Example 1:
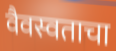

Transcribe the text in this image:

वैवस्वताचा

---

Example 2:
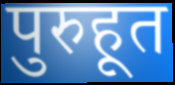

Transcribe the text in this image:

पुरुहूत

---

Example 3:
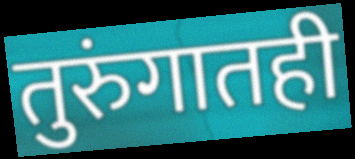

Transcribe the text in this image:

तुरुंगातही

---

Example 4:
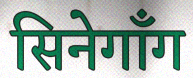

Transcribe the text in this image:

सिनेगाँग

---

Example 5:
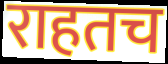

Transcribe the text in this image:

राहतच